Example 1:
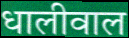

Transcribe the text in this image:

धालीवाल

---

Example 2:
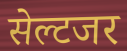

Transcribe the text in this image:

सेल्टजर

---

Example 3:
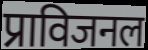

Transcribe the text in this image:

प्राविजनल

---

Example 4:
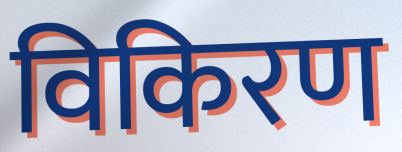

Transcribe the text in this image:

विकिरण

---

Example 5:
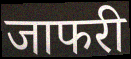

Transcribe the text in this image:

जाफरी